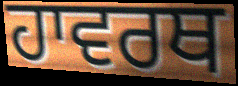
ਹਾਵਰਥ